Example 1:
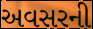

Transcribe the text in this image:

અવસરની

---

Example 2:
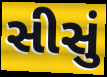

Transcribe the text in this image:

સીસું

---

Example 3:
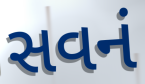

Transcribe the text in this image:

સવનં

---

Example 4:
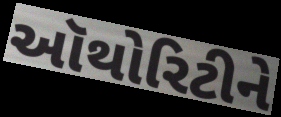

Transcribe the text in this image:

ઑથોરિટીને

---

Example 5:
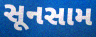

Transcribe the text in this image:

સૂનસામ